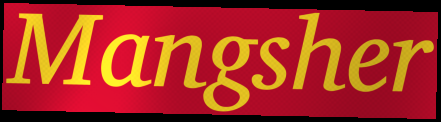
Mangsher